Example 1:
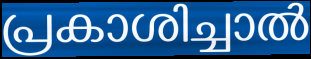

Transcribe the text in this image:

പ്രകാശിച്ചാൽ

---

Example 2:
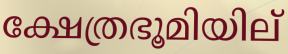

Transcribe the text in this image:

ക്ഷേത്രഭൂമിയില്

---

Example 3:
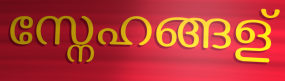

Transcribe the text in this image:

സ്നേഹങ്ങള്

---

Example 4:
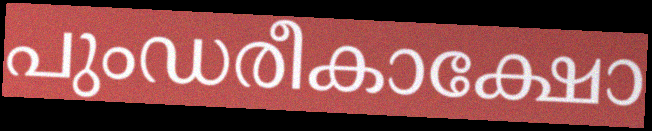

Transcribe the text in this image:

പുംഡരീകാക്ഷോ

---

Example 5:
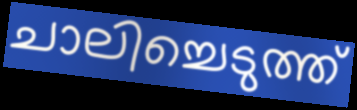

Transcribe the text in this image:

ചാലിച്ചെടുത്ത്